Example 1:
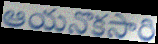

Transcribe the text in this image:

ఆయనొకసారి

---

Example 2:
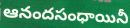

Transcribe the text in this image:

ఆనందసంధాయినీ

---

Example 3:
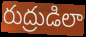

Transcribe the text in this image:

రుద్రుడిలా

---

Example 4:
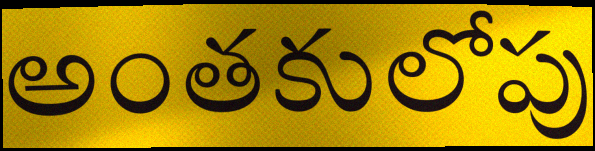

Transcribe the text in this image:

అంతకులోపు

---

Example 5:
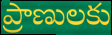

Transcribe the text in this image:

ప్రాణులకు